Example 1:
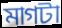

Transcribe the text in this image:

মাগটা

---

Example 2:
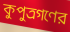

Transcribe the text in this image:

কুপুত্রগণের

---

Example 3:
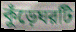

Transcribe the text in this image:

কুঁড়েঘরটি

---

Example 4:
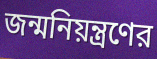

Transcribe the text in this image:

জন্মনিয়ন্ত্রণের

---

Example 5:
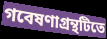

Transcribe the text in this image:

গবেষণাগ্রন্থটিতে